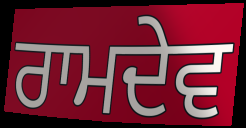
ਰਾਮਦੇਵ